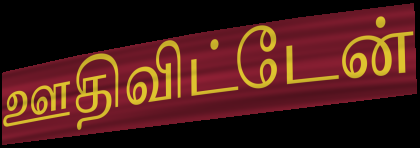
ஊதிவிட்டேன்